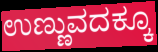
ಉಣ್ಣುವದಕ್ಕೂ